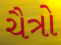
ચૈત્રો